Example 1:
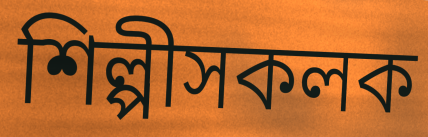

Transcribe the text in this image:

শিল্পীসকলক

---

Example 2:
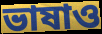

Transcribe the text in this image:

ভাষাও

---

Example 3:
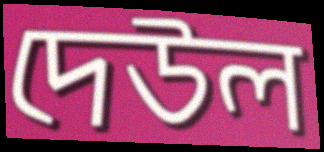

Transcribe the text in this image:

দেউল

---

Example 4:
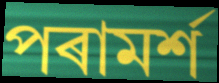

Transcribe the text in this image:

পৰামৰ্শ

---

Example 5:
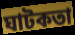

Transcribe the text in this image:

ঘাটকতা